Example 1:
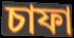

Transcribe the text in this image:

চাফা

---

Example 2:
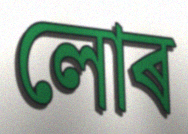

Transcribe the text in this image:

লোৰ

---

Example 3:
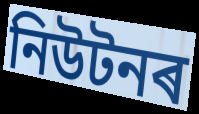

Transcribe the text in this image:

নিউটনৰ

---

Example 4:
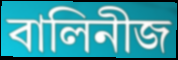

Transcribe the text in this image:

বালিনীজ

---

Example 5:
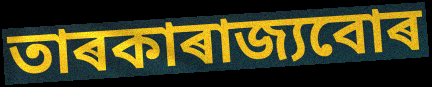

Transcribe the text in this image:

তাৰকাৰাজ্যবোৰ